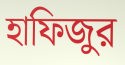
হাফিজুর